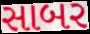
સાબર